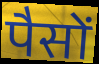
पैसों